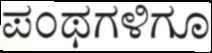
ಪಂಥಗಳಿಗೂ